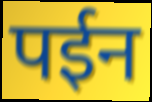
पईन